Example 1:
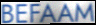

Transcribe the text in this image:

BEFAAM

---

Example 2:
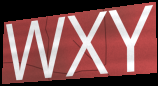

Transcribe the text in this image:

WXY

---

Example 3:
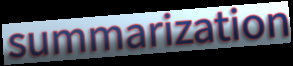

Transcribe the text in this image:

summarization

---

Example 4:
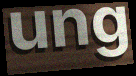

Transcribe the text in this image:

ung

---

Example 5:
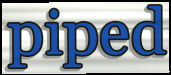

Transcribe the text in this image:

piped